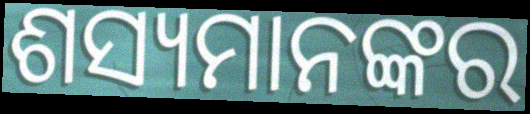
ଶସ୍ୟମାନଙ୍କର